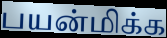
பயன்மிக்க